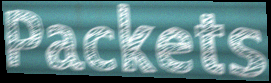
Packets